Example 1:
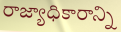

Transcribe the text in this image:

రాజ్యాధికారాన్ని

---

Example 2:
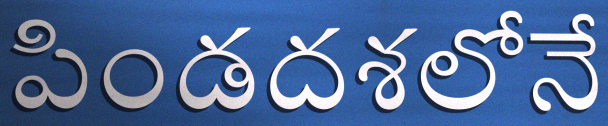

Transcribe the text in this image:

పిండదశలోనే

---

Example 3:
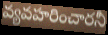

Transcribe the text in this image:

వ్యవహరించారనీ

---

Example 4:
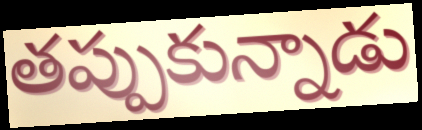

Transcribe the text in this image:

తప్పుకున్నాడు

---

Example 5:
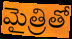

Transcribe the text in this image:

మైత్రితో